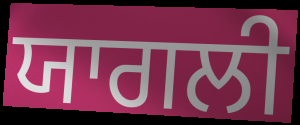
ਯਾਗਲੀ